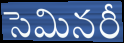
సెమినరీ